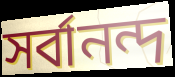
সর্বানন্দ